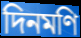
দিনমণি